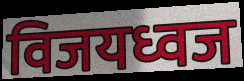
विजयध्वज